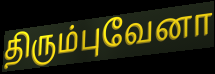
திரும்புவேனா